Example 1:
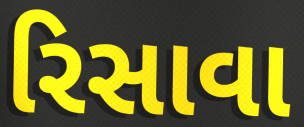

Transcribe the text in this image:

રિસાવા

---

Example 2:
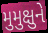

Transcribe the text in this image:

મુમુક્ષુને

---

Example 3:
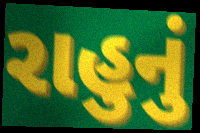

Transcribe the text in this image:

રાહુનું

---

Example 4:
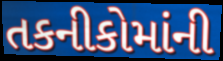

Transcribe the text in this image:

તકનીકોમાંની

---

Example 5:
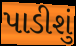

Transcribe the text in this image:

પાડીશું